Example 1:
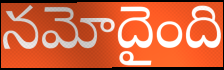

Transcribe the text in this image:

నమోదైంది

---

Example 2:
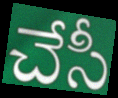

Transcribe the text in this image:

చేసీ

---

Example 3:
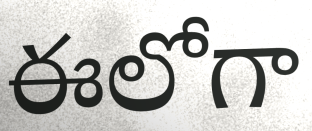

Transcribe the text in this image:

ఈలోగా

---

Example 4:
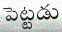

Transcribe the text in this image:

పెట్టడు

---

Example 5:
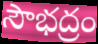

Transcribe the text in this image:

సౌభద్రం